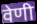
वेणी